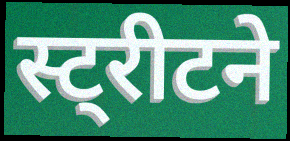
स्ट्रीटने